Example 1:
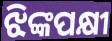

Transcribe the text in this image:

ଝିଙ୍କପକ୍ଷୀ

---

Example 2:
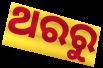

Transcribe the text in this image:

ଥରରୁ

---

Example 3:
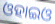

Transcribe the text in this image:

ଓହାଇଓ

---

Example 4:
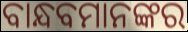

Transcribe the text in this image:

ବାନ୍ଧବମାନଙ୍କର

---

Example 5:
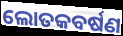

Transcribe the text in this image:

ଲୋତକବର୍ଷଣ